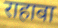
राहावा